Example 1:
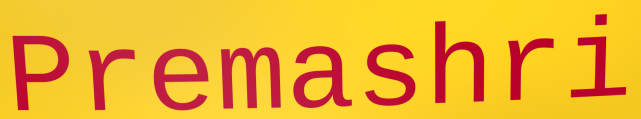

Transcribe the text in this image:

Premashri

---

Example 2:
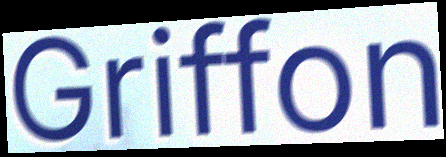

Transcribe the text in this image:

Griffon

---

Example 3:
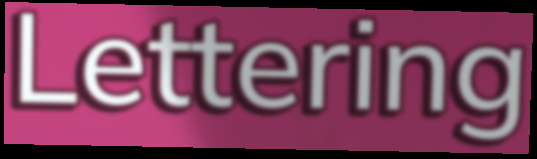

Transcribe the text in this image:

Lettering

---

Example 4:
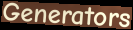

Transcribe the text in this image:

Generators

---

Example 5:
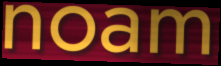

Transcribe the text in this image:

noam